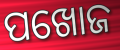
ପଖୋଜ